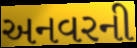
અનવરની